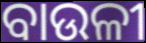
ବାଉଳୀ